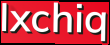
Ixchiq